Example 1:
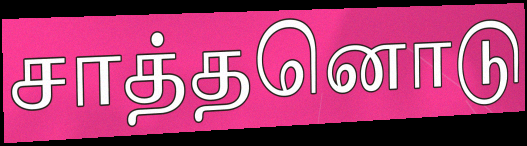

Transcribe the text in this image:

சாத்தனொடு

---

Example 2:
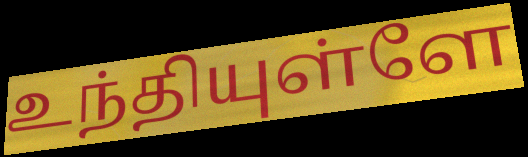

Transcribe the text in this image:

உந்தியுள்ளே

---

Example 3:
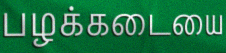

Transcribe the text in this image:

பழக்கடையை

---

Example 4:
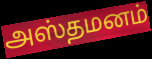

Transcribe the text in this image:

அஸ்தமனம்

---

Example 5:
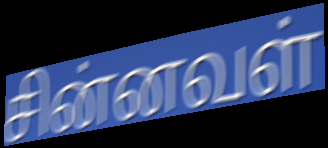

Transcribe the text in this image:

சின்னவள்